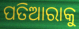
ପତିଆରାକୁ